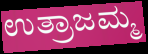
ಉತ್ರಾಜಮ್ಮ